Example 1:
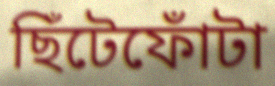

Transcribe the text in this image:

ছিঁটেফোঁটা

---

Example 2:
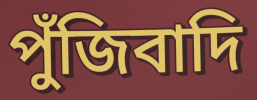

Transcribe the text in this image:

পুঁজিবাদি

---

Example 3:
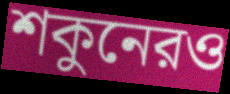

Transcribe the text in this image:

শকুনেরও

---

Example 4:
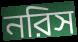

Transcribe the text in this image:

নরিস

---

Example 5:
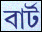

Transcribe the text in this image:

বার্ট